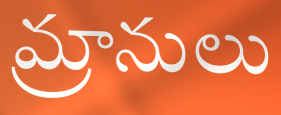
మ్రానులు